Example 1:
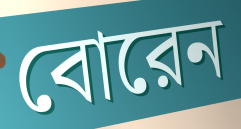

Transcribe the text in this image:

বোরেন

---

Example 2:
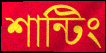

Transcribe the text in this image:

শান্টিং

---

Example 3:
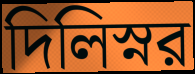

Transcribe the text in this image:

দিলিস্নর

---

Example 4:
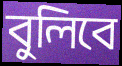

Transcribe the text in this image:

বুলিবে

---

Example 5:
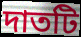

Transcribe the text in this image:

দাতটি